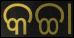
କଚ୍ଚା